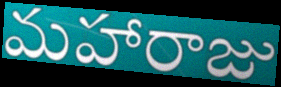
మహారాజు